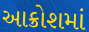
આક્રોશમાં